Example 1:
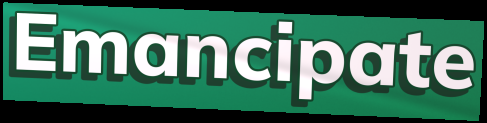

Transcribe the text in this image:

Emancipate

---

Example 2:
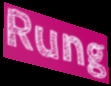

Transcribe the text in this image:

Rung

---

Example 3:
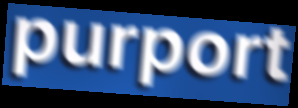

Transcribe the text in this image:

purport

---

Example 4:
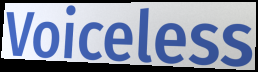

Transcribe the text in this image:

Voiceless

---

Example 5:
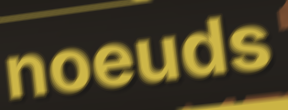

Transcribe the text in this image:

noeuds